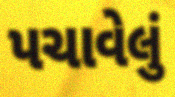
પચાવેલું